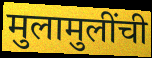
मुलामुलींची